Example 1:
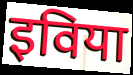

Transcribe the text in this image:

इविया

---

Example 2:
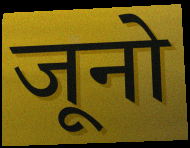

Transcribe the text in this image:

जूनो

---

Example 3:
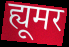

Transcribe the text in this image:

ह्यूमर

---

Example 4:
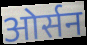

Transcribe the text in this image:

ओर्सन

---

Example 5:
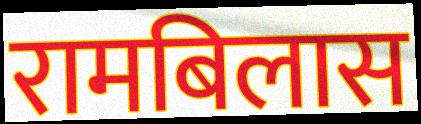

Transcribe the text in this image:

रामबिलास